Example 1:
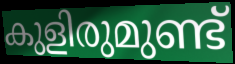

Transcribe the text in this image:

കുളിരുമുണ്ട്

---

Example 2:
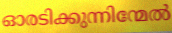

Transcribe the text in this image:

ഓരടിക്കുന്നിന്മേൽ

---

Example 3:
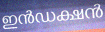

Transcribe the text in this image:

ഇൻഡക്ഷൻ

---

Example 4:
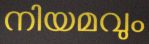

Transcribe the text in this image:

നിയമവും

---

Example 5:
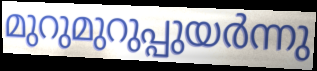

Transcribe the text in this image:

മുറുമുറുപ്പുയർന്നു